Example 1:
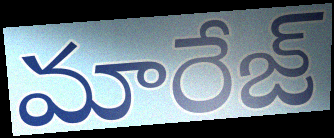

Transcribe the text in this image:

మారేజ్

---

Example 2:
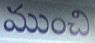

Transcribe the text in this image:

ముంచి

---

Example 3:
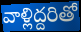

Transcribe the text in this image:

వాళ్లిద్దరితో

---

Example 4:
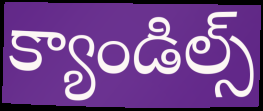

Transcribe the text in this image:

క్యాండిల్స్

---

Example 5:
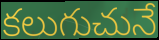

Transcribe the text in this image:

కలుగుచునే